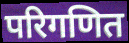
परिगणित